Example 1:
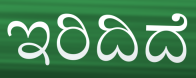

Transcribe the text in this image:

ಇರಿದಿದೆ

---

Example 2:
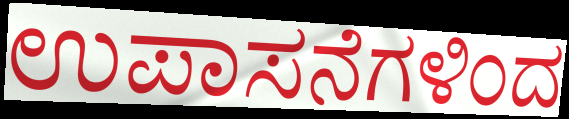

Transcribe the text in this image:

ಉಪಾಸನೆಗಳಿಂದ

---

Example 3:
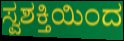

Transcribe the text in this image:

ಸ್ವಶಕ್ತಿಯಿಂದ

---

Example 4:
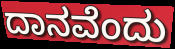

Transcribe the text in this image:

ದಾನವೆಂದು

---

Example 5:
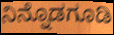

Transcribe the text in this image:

ನಿನ್ನೊಡಗೂಡಿ